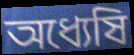
অধ্যেষি